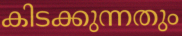
കിടക്കുന്നതും